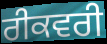
ਰੀਕਵਰੀ